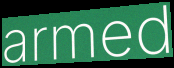
armed